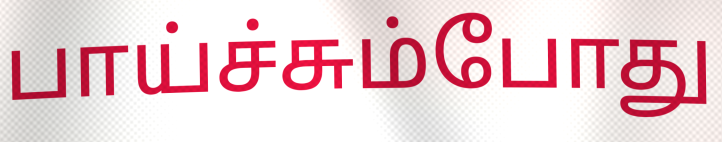
பாய்ச்சும்போது